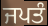
ਜਪਤੰ